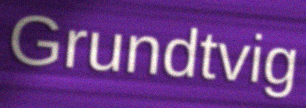
Grundtvig